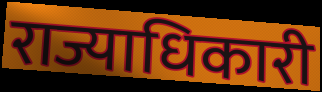
राज्याधिकारी